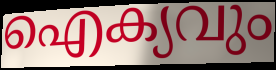
ഐക്യവും